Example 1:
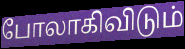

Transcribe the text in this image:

போலாகிவிடும்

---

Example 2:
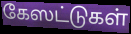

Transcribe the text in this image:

கேஸட்டுகள்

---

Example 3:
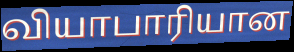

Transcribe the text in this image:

வியாபாரியான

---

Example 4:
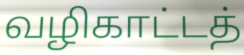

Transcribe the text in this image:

வழிகாட்டத்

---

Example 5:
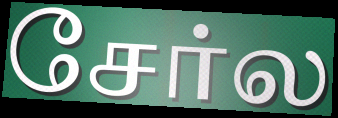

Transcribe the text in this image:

சேர்ல